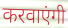
करवाएंगी